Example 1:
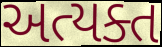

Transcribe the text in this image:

અત્યક્ત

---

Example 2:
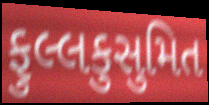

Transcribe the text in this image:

ફુલ્લકુસુમિત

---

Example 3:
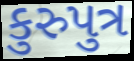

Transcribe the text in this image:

કુરુપુત્ર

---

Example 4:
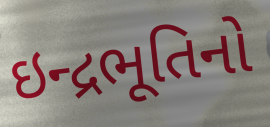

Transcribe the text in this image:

ઇન્દ્રભૂતિનો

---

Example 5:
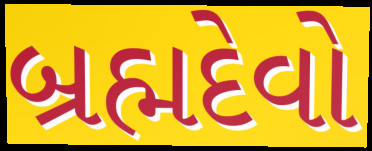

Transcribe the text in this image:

બ્રહ્મદેવો